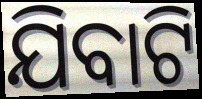
ଯିବାଟି